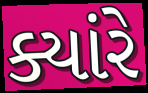
ક્યાંરે